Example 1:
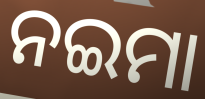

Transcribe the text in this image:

ନଇମା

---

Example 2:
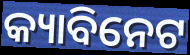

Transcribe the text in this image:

କ୍ୟାବିନେଟ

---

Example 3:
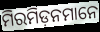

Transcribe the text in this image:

ମିରମିଡ଼ନମାନେ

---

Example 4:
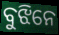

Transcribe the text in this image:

ବୁଝିନେ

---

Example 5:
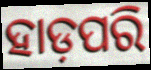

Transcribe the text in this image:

ହାଡ଼ପରି